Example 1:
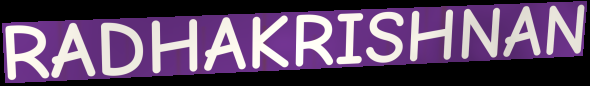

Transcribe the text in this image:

RADHAKRISHNAN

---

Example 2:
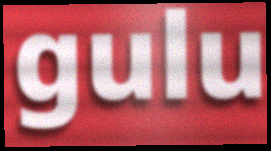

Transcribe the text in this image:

gulu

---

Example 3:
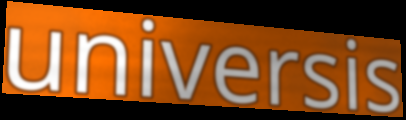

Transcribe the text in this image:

universis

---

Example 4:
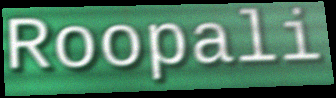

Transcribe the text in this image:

Roopali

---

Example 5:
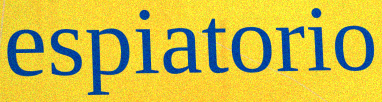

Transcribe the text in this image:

espiatorio